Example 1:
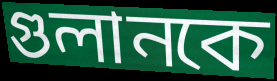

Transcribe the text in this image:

গুলানকে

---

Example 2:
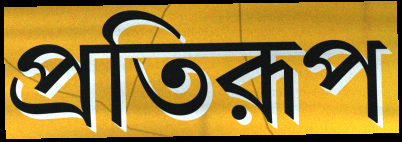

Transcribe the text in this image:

প্রতিরূপ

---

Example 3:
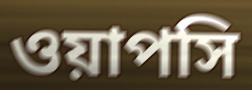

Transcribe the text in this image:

ওয়াপসি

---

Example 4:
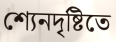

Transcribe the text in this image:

শ্যেনদৃষ্টিতে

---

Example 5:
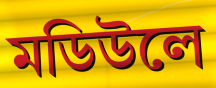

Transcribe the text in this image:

মডিউলে